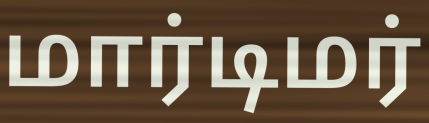
மார்டிமர்